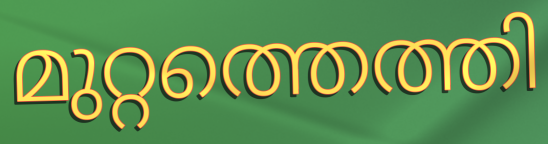
മുറ്റത്തെത്തി